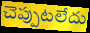
చెప్పుటలేదు